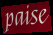
paise